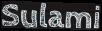
Sulami